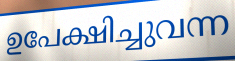
ഉപേക്ഷിച്ചുവന്ന